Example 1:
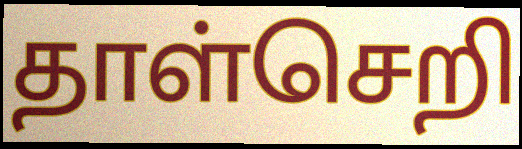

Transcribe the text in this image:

தாள்செறி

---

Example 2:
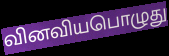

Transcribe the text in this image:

வினவியபொழுது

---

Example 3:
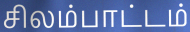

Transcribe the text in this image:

சிலம்பாட்டம்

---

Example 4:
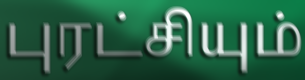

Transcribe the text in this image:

புரட்சியும்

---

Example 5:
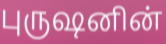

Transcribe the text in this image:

புருஷனின்